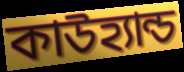
কাউহ্যান্ড